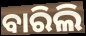
ବାରିଲି